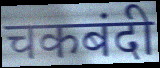
चकबंदी